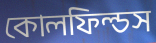
কোলফিল্ডস